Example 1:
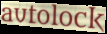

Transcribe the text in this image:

autolock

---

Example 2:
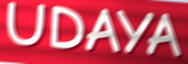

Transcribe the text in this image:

UDAYA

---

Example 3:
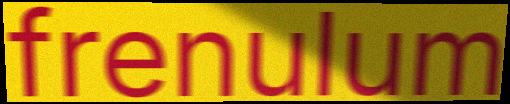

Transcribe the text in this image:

frenulum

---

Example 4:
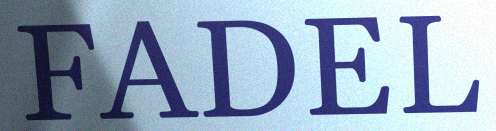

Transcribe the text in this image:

FADEL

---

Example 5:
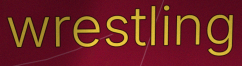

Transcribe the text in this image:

wrestling